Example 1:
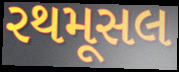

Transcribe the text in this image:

રથમૂસલ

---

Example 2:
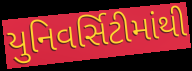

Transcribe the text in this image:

યુનિવર્સિટીમાંથી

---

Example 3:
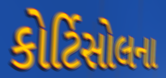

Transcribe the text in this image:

કોર્ટિસોલના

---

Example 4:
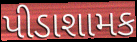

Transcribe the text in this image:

પીડાશામક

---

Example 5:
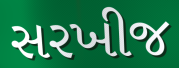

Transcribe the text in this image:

સરખીજ